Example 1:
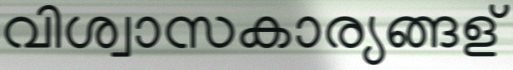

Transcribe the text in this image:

വിശ്വാസകാര്യങ്ങള്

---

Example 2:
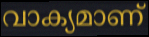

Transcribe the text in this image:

വാക്യമാണ്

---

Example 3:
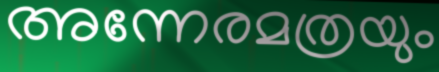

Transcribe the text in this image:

അന്നേരമത്രയും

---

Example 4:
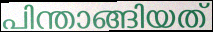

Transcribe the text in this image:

പിന്താങ്ങിയത്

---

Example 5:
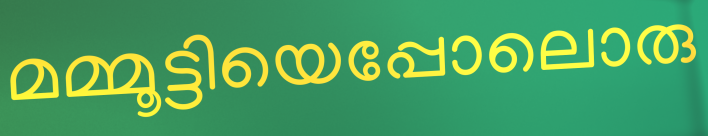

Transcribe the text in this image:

മമ്മൂട്ടിയെപ്പോലൊരു